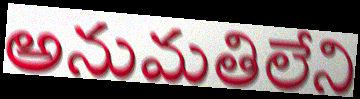
అనుమతిలేని